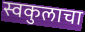
स्वकुलाचा